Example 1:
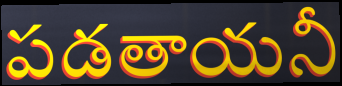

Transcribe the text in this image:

పడతాయనీ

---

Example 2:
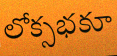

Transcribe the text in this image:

లోక్సభకూ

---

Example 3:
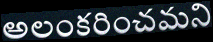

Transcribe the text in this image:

అలంకరించమని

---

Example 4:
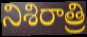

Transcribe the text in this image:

నిశిరాత్రి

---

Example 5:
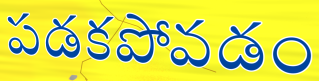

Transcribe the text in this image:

పడకపోవడం